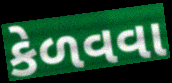
કેળવવા